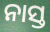
ନାସ୍ତ